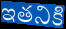
ఇతనికి